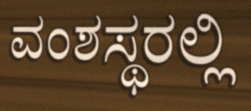
ವಂಶಸ್ಥರಲ್ಲಿ